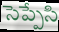
సెప్పేసి